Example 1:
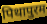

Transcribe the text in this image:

पिथापुरम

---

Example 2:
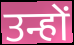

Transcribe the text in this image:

उन्हों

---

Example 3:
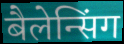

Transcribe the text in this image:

बैलेन्सिंग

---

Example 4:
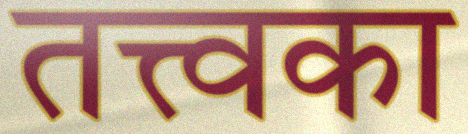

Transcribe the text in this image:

तत्त्वका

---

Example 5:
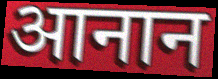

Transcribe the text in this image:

आनान